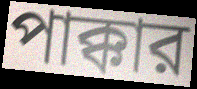
পাক্কার